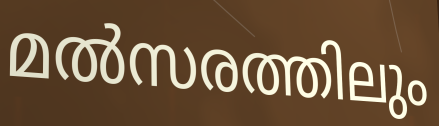
മൽസരത്തിലും